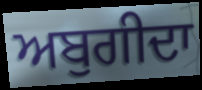
ਅਬੁਗੀਦਾ